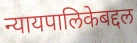
न्यायपालिकेबद्दल